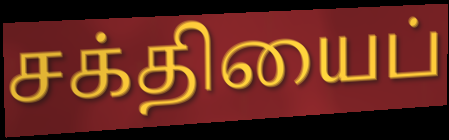
சக்தியைப்